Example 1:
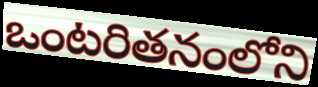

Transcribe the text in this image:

ఒంటరితనంలోని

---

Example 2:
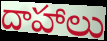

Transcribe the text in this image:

దాహాలు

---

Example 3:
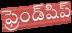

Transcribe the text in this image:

ఫ్రెండ్‌షిప్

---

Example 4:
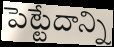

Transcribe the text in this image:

పెట్టేదాన్ని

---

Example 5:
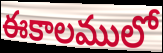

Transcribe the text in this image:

ఈకాలములో